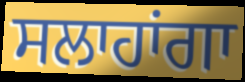
ਸਲਾਹਾਂਗਾ